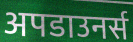
अपडाउनर्स